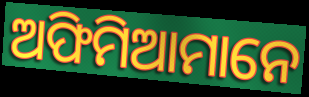
ଅଫିମିଆମାନେ